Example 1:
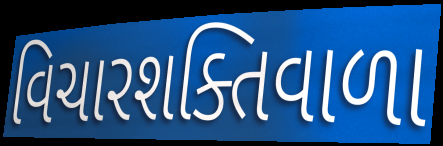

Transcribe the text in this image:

વિચારશક્તિવાળા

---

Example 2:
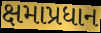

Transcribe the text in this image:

ક્ષમાપ્રધાન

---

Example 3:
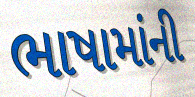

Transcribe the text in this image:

ભાષામાંની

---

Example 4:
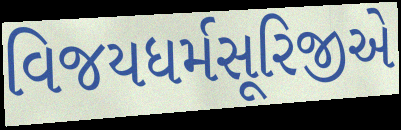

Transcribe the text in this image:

વિજયધર્મસૂરિજીએ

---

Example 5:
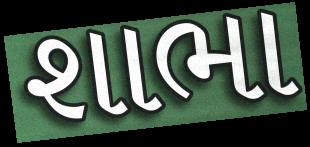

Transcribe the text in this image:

શાભા